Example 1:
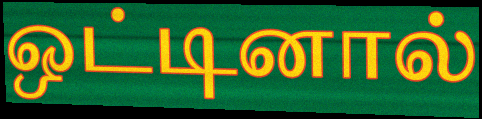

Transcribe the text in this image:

ஒட்டினால்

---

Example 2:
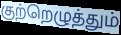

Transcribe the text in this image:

குற்றெழுத்தும்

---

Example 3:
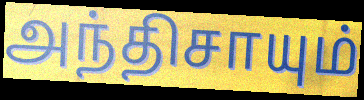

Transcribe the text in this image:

அந்திசாயும்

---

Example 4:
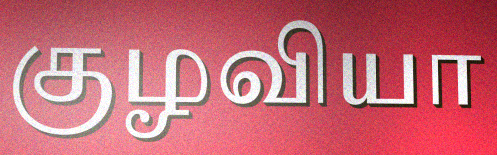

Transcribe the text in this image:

குழவியா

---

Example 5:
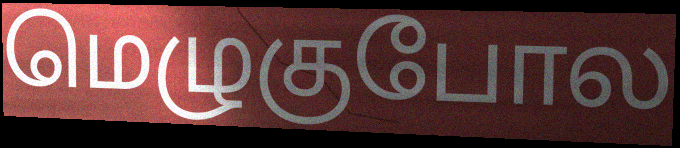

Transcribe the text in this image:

மெழுகுபோல